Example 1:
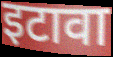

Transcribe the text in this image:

इटावा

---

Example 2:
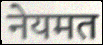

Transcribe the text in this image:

नेयमत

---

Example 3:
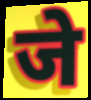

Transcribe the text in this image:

जे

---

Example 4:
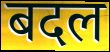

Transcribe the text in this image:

बदल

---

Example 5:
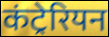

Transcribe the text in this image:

कंट्रेरियन